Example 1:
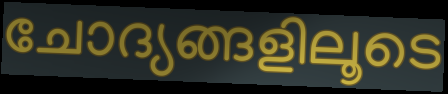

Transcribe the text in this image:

ചോദ്യങ്ങളിലൂടെ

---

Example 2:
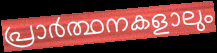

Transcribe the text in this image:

പ്രാർത്ഥനകളാലും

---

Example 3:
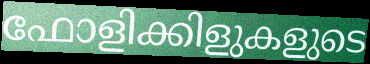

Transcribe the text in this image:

ഫോളിക്കിളുകളുടെ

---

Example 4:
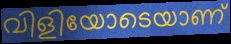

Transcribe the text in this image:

വിളിയോടെയാണ്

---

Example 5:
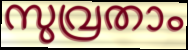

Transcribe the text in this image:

സുവ്രതാം